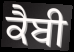
ਕੈਬੀ